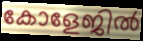
കോളേജിൽ